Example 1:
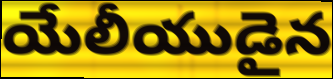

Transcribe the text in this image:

యేలీయుడైన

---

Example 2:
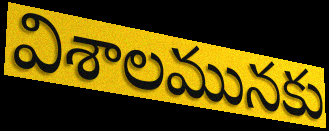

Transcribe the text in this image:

విశాలమునకు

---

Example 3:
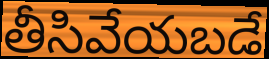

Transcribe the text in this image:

తీసివేయబడే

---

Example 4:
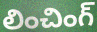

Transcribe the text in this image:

లించింగ్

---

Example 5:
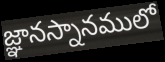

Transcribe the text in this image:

జ్ఞానస్నానములో